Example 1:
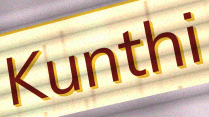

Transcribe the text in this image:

Kunthi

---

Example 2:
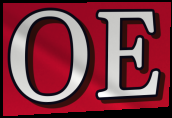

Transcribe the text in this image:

OE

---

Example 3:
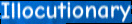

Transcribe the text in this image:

Illocutionary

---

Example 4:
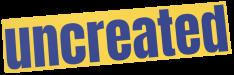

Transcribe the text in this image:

uncreated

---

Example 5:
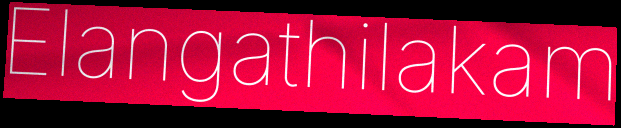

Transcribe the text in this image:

Elangathilakam